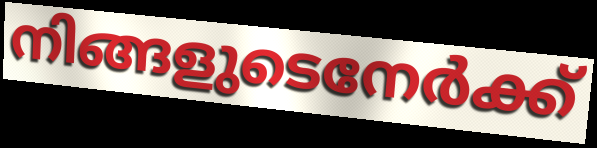
നിങ്ങളുടെനേർക്ക്